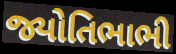
જ્યોતિભાભી